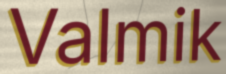
Valmik